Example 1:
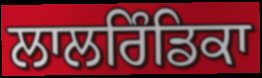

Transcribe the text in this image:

ਲਾਲਰਿੰਡਿਕਾ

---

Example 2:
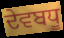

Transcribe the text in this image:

ਦੇਵਬਧੂ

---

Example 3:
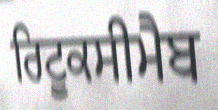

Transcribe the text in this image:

ਰਿਟੂਕਸੀਮੈਬ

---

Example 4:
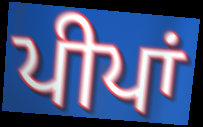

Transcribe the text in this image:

ਪੀਪਾਂ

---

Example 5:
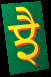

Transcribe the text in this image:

ਝੈ